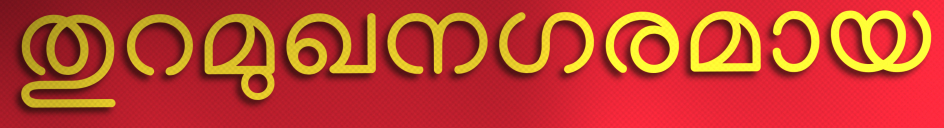
തുറമുഖനഗരമായ